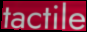
tactile